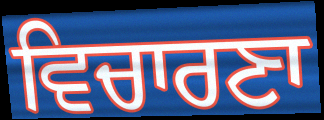
ਵਿਚਾਰਣਾ